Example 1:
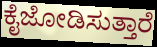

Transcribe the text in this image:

ಕೈಜೋಡಿಸುತ್ತಾರೆ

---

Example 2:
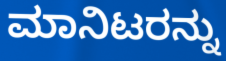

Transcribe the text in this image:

ಮಾನಿಟರನ್ನು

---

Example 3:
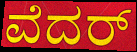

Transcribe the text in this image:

ವೆದರ್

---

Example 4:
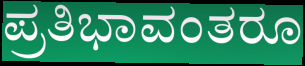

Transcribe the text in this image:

ಪ್ರತಿಭಾವಂತರೂ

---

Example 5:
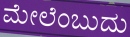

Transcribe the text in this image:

ಮೇಲೆಂಬುದು